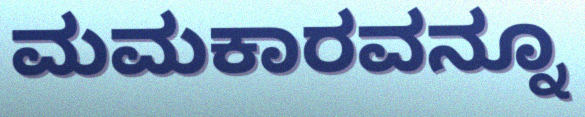
ಮಮಕಾರವನ್ನೂ